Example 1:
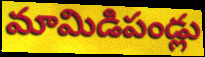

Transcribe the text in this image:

మామిడిపండ్లు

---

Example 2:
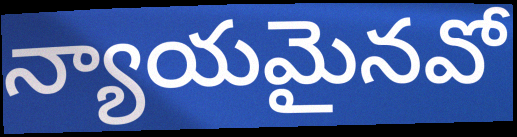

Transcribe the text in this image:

న్యాయమైనవో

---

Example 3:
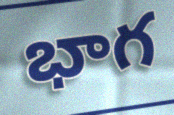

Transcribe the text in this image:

భాగ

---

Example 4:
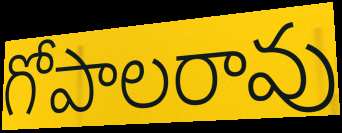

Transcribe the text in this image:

గోపాలరావు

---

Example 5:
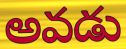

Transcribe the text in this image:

అవడు